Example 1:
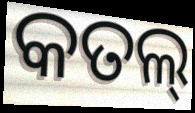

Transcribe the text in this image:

କତଲ୍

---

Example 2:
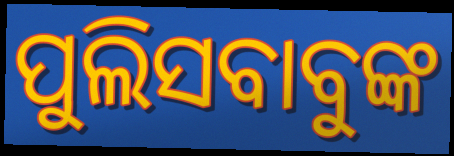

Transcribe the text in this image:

ପୁଲିସବାବୁଙ୍କ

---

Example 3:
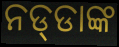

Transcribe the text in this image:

ନଡ୍‌ଡାଙ୍କ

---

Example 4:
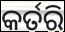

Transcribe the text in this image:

କର୍ତରି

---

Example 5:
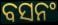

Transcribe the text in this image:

ବସନଂ